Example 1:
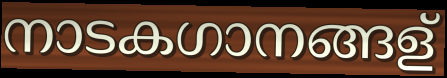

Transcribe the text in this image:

നാടകഗാനങ്ങള്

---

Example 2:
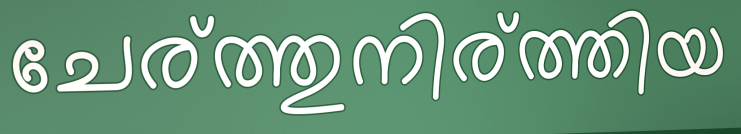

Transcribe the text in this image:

ചേര്ത്തുനിര്ത്തിയ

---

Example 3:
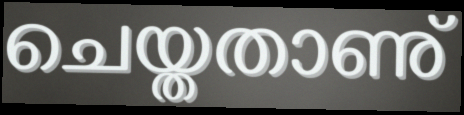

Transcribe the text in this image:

ചെയ്തതാണു്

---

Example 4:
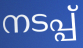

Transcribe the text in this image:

നടപ്പ്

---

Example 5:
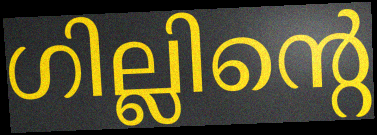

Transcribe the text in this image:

ഗില്ലിന്റെ